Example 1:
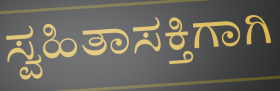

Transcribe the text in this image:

ಸ್ವಹಿತಾಸಕ್ತಿಗಾಗಿ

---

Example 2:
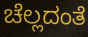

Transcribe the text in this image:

ಚೆಲ್ಲದಂತೆ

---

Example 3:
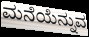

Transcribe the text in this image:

ಮನೆಯೆನ್ನುವ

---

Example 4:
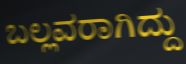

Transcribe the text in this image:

ಬಲ್ಲವರಾಗಿದ್ದು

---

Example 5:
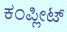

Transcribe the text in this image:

ಕಂಪ್ಲೀಟ್